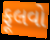
ફૂલવો